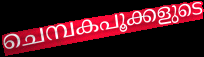
ചെമ്പകപൂക്കളുടെ